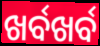
ଖର୍ବଖର୍ବ